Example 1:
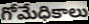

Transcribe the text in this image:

గోమేధికాలు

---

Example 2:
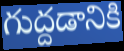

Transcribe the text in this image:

గుద్దడానికి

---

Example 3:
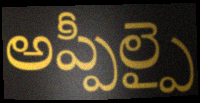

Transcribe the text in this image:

అప్పీల్పై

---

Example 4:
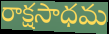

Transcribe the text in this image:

రాక్షసాధమ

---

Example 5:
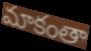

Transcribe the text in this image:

మాకంతా